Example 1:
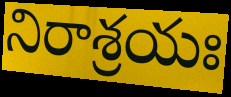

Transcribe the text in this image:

నిరాశ్రయః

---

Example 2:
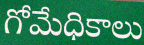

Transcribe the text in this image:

గోమేధికాలు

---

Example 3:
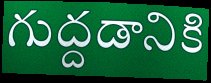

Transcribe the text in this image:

గుద్దడానికి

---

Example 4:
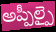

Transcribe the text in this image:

అప్పీల్పై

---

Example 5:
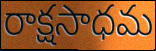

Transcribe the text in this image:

రాక్షసాధమ